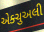
એક્ચુઅલી